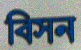
বিসন